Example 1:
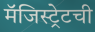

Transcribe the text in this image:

मॅजिस्ट्रेटची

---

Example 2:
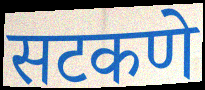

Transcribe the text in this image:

सटकणे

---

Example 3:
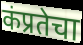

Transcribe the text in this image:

कंप्रतेचा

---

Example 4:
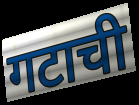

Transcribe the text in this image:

गटाची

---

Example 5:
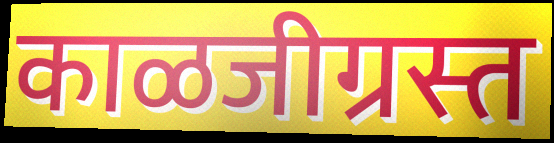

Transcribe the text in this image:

काळजीग्रस्त